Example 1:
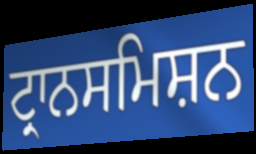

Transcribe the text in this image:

ਟ੍ਰਾਨਸਮਿਸ਼ਨ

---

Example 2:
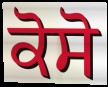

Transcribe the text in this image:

ਕੋਸੋ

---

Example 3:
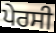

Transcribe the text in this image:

ਪੇਰਸੀ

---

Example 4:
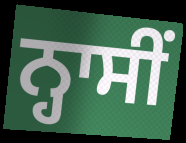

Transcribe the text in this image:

ਨ੍ਹਾਸੀਂ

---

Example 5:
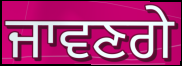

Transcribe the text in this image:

ਜਾਵਣਗੇ